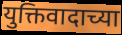
युक्तिवादाच्या